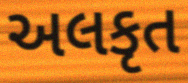
અલકૃત